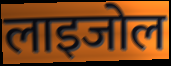
लाइजोल